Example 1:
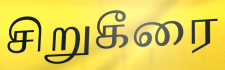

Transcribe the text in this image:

சிறுகீரை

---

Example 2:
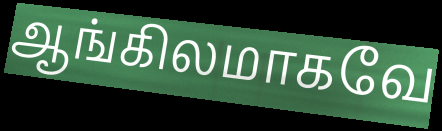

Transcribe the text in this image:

ஆங்கிலமாகவே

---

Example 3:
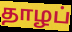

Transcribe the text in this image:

தாழப்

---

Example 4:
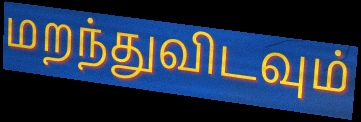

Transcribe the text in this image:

மறந்துவிடவும்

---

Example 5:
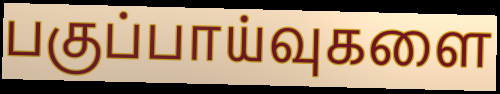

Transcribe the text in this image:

பகுப்பாய்வுகளை